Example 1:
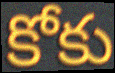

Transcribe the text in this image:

కోకు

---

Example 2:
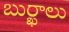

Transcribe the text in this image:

బుర్ఖాలు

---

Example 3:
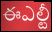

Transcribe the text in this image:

ఈఎల్టీ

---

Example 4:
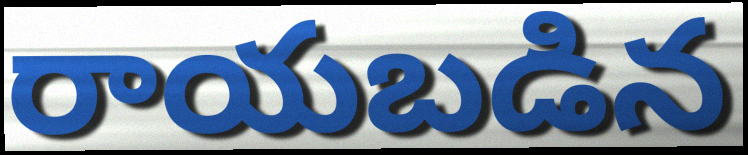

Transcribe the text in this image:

రాయబడిన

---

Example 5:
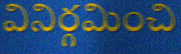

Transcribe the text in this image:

వినిర్గమించి